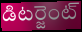
డిటర్జెంట్